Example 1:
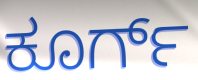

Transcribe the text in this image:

ಕೂರ್ಗ್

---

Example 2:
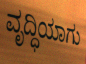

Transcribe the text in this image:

ವೃದ್ಧಿಯಾಗು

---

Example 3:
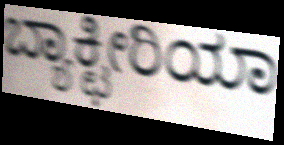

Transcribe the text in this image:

ಬ್ಯಾಕ್ಟೀರಿಯಾ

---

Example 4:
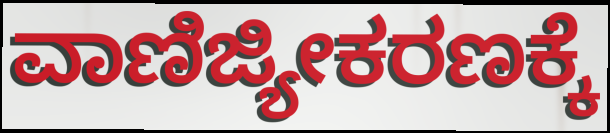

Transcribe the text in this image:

ವಾಣಿಜ್ಯೀಕರಣಕ್ಕೆ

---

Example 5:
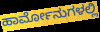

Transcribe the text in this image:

ಹಾರ್ಮೋನುಗಳಲ್ಲಿ